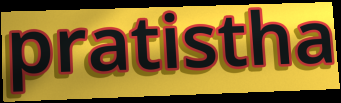
pratistha